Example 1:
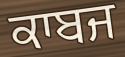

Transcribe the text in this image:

ਕਾਬਜ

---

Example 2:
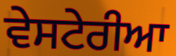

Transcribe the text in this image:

ਵੇਸਟੇਰੀਆ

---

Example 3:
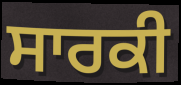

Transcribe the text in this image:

ਸਾਰਕੀ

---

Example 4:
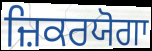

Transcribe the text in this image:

ਜ਼ਿਕਰਯੋਗਾ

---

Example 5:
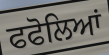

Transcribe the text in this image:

ਫਫੋਲਿਆਂ